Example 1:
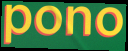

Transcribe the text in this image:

pono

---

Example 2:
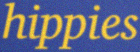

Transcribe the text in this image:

hippies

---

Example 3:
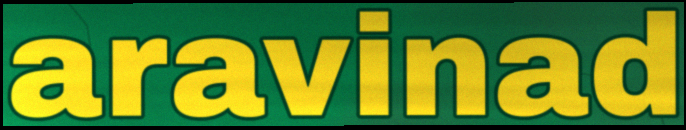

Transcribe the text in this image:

aravinad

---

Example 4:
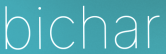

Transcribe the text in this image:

bichar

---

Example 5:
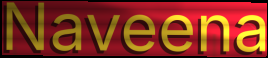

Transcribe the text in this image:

Naveena